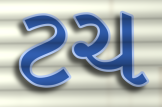
ટચ